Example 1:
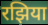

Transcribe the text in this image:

रझिया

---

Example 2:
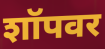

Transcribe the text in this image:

शॉपवर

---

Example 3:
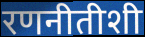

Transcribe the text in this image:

रणनीतीशी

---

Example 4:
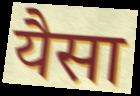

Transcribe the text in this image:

यैसा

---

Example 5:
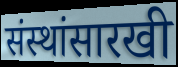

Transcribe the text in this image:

संस्थांसारखी